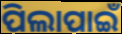
ପିଲାପାଇଁ